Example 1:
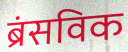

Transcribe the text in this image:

ब्रंसविक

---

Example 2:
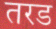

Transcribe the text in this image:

तरड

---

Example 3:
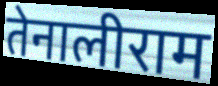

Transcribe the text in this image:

तेनालीराम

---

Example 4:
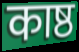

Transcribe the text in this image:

काष्ठ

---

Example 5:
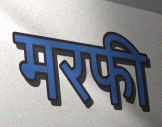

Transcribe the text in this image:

मरफी